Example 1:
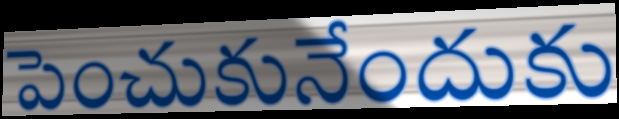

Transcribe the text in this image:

పెంచుకునేందుకు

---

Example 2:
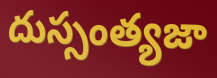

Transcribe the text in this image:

దుస్సంత్యజా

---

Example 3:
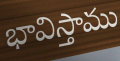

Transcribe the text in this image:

భావిస్తాము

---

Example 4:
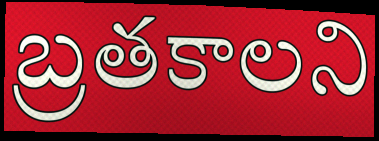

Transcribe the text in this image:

బ్రతకాలని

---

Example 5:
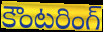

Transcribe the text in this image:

కౌంటరింగ్